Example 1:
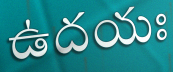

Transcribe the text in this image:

ఉదయః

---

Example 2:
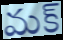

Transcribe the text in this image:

మక్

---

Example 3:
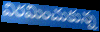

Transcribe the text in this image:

విరమించుకున్న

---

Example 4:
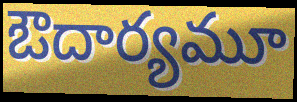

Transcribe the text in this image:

ఔదార్యమూ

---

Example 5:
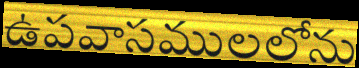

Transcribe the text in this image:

ఉపవాసములలోను